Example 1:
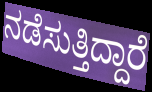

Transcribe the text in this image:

ನಡೆಸುತ್ತಿದ್ದಾರೆ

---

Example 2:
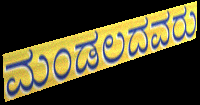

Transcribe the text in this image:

ಮಂಡಲದವರು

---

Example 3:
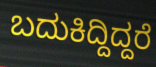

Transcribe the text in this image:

ಬದುಕಿದ್ದಿದ್ದರೆ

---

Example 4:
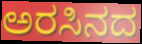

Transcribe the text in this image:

ಅರಸಿನದ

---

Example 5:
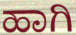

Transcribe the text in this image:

ಹಾಗಿ